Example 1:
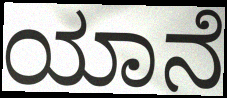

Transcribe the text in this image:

ಯಾನೆ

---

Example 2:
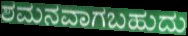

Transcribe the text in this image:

ಶಮನವಾಗಬಹುದು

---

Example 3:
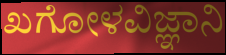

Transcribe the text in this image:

ಖಗೋಳವಿಜ್ಞಾನಿ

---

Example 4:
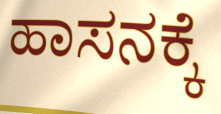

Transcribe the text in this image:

ಹಾಸನಕ್ಕೆ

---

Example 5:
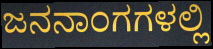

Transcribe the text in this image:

ಜನನಾಂಗಗಳಲ್ಲಿ